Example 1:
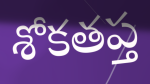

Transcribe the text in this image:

శోకతప్త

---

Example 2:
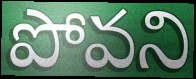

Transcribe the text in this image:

పోవని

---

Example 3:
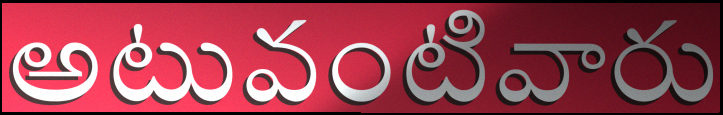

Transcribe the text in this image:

అటువంటివారు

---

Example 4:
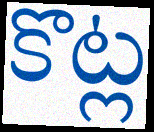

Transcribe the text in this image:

కొట్ల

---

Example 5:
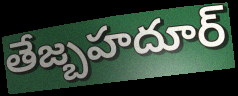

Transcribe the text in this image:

తేజ్బహదూర్